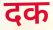
दक